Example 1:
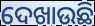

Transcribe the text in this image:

ଦେଖାଉଛି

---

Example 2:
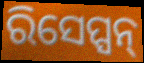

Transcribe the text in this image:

ରିସେପ୍ସନ୍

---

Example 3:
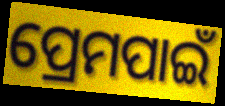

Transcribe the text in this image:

ପ୍ରେମପାଇଁ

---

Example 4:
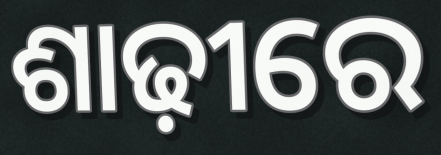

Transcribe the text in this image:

ଶାଢ଼ୀରେ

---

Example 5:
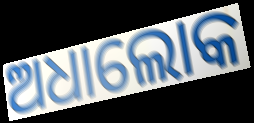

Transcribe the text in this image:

ଅଧାଲୋକ